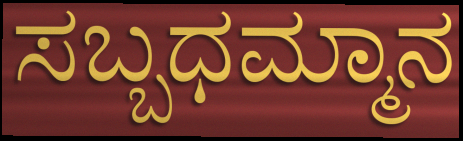
ಸಬ್ಬಧಮ್ಮಾನ